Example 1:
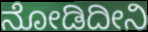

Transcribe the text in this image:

ನೋಡಿದೀನಿ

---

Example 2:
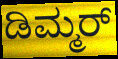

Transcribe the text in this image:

ಡಿಮ್ಮರ್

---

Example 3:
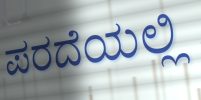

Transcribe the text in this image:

ಪರದೆಯಲ್ಲಿ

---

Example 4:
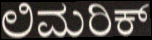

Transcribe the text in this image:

ಲಿಮರಿಕ್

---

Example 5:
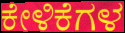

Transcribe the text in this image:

ಕೇಳಿಕೆಗಳ